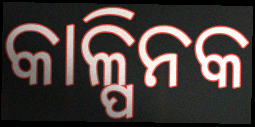
କାଳ୍ପିନକ